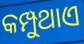
କମ୍ପୁଥାଏ